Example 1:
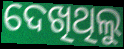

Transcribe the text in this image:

ଦେଖିଥିଲୁ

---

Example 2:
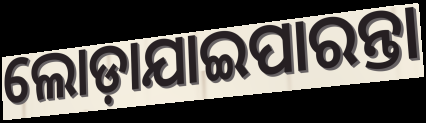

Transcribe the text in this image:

ଲୋଡ଼ାଯାଇପାରନ୍ତା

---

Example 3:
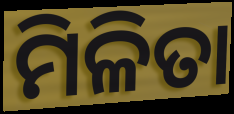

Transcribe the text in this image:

ମିଳିତା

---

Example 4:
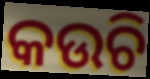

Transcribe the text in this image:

କଉଚି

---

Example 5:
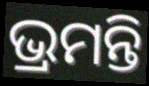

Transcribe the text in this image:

ଭ୍ରମନ୍ତି